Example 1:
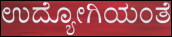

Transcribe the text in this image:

ಉದ್ಯೋಗಿಯಂತೆ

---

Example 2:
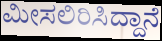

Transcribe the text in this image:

ಮೀಸಲಿರಿಸಿದ್ದಾನೆ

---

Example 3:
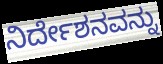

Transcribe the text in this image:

ನಿರ್ದೇಶನವನ್ನು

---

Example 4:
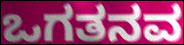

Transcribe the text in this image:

ಒಗತನವ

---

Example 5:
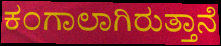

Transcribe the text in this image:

ಕಂಗಾಲಾಗಿರುತ್ತಾನೆ